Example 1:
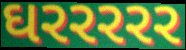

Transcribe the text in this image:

ઘરરરરર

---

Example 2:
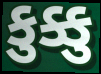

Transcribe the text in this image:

કુક્કુ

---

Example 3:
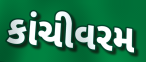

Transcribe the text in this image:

કાંચીવરમ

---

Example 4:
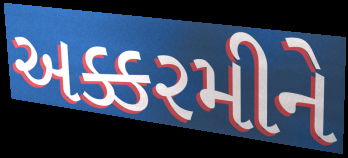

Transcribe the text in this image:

અક્કરમીને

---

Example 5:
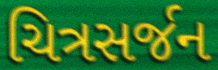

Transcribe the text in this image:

ચિત્રસર્જન